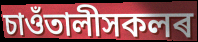
চাওঁতালীসকলৰ